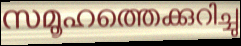
സമൂഹത്തെക്കുറിച്ചു